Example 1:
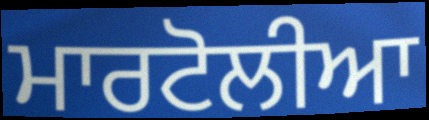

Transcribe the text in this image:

ਮਾਰਟੋਲੀਆ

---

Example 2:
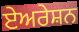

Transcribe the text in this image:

ਏਅਰੇਸ਼ਨ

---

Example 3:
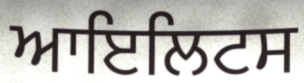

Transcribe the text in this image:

ਆਇਲਿਟਸ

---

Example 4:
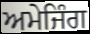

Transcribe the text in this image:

ਅਮੇਜਿੰਗ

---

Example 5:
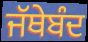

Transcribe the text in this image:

ਜੱਥੇਬੰਦ